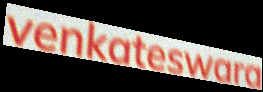
venkateswara